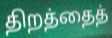
திறத்தைத்